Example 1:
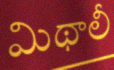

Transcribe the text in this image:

మిథాలీ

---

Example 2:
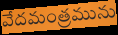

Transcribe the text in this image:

వేదమంత్రమును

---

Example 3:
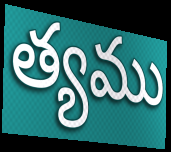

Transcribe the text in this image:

త్యము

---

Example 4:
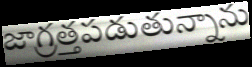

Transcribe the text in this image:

జాగ్రత్తపడుతున్నాను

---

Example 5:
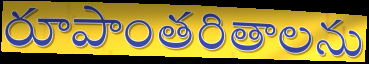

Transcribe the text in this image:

రూపాంతరితాలను